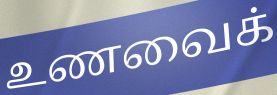
உணவைக்